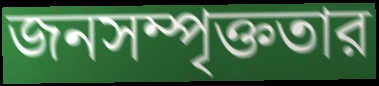
জনসম্পৃক্ততার